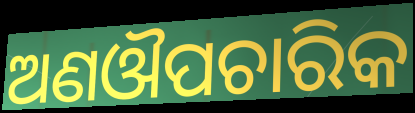
ଅଣଔପଚାରିକ